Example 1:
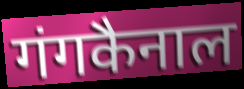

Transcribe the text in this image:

गंगकैनाल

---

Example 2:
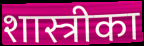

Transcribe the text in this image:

शास्त्रीका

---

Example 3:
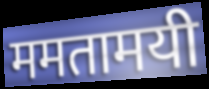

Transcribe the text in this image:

ममतामयी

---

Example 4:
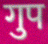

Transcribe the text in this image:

गुप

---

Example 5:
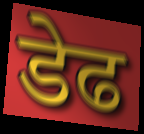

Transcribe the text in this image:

डेढ